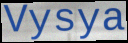
Vysya